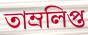
তাম্রলিপ্ত